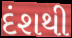
દંશથી